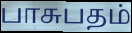
பாசுபதம்